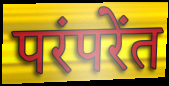
परंपरेंत